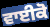
ਵਾਈਕੋ